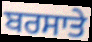
ਬਰਸਾਤੇ